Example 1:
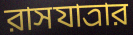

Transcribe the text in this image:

রাসযাত্রার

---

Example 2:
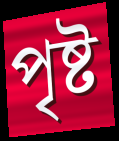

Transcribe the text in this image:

পৃষ্ট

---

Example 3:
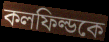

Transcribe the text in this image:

কলফিল্ডকে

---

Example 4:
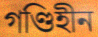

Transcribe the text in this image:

গণ্ডিহীন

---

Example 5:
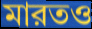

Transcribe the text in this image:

মারতও